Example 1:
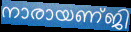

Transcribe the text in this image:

നാരായണ്ജി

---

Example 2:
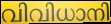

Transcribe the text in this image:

വിവിധാനി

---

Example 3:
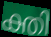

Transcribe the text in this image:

ക്തി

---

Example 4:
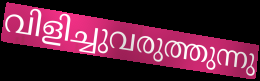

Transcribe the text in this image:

വിളിച്ചുവരുത്തുന്നു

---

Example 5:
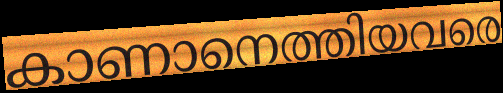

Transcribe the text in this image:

കാണാനെത്തിയവരെ